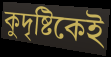
কুদৃষ্টিকেই